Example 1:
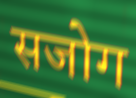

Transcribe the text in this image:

सजोग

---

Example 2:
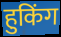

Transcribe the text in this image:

हुकिंग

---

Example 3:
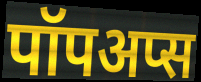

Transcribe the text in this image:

पॉपअप्स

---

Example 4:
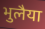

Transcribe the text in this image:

भुलैया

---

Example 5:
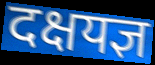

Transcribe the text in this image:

दक्षयज्ञ